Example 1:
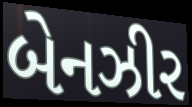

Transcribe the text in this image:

બેનઝીર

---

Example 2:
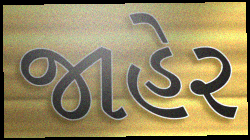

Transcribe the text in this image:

જાહેર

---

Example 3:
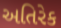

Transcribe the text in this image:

અતિરેક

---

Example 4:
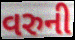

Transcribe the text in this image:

વરુની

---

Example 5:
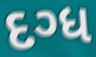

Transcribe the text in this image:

દગ્ધ